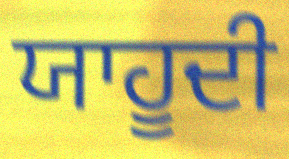
ਯਾਹੂਦੀ